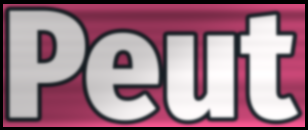
Peut